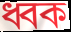
ধ্বক